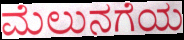
ಮೆಲುನಗೆಯ